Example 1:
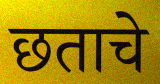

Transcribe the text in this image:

छताचे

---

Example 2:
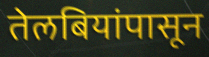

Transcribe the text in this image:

तेलबियांपासून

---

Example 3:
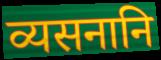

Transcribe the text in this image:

व्यसनानि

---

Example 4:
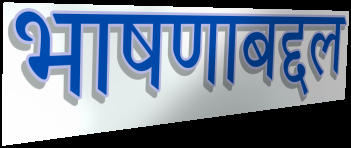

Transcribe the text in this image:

भाषणाबद्दल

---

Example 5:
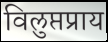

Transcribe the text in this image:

विलुप्तप्राय